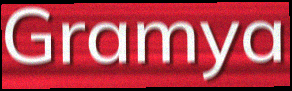
Gramya